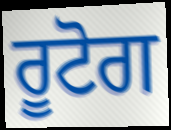
ਰੂਟੋਗ